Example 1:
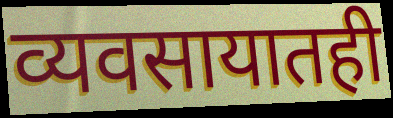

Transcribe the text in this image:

व्यवसायातही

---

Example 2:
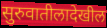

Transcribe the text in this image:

सुरुवातीलादेखील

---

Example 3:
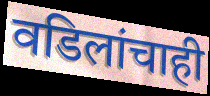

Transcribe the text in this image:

वडिलांचाही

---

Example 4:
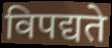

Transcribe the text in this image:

विपद्यते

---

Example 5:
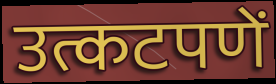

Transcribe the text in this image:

उत्कटपणें